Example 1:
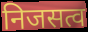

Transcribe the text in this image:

निजसत्व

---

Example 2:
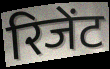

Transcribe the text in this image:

रिजेंट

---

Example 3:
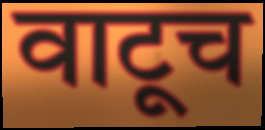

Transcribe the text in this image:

वाटूच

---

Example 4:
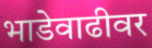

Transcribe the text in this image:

भाडेवाढीवर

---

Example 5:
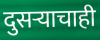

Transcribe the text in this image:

दुसऱ्याचाही